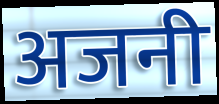
अजनी